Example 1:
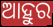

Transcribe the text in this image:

ଆହୁର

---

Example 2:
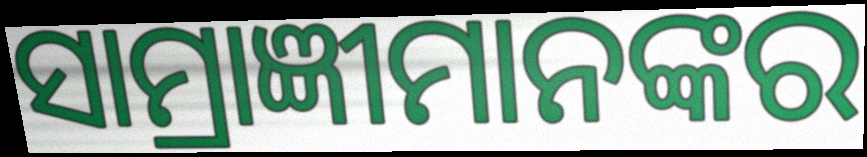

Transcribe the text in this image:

ସାମ୍ରାଜ୍ଞୀମାନଙ୍କର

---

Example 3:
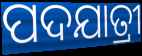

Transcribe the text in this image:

ପଦଯାତ୍ରୀ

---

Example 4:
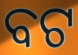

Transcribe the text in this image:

ବଟ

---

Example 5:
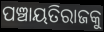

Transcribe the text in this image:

ପଞ୍ଚାୟତିରାଜକୁ